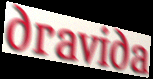
dravida